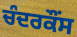
ਚੰਦਰਕੌਂਸ